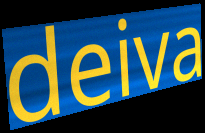
deiva